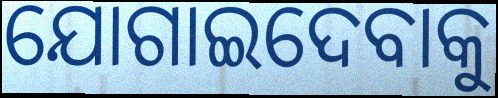
ଯୋଗାଇଦେବାକୁ